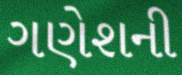
ગણેશની